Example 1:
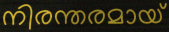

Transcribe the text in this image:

നിരന്തരമായ്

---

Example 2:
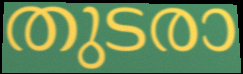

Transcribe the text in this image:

തുടരാ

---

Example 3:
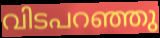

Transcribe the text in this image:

വിടപറഞ്ഞു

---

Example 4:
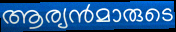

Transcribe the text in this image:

ആര്യൻമാരുടെ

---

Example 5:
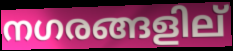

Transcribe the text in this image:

നഗരങ്ങളില്